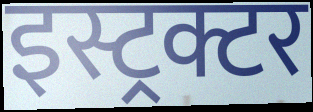
इस्ट्रक्टर